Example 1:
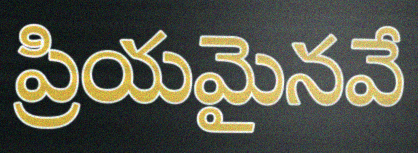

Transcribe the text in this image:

ప్రియమైనవే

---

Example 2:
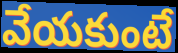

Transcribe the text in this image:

వేయకుంటే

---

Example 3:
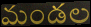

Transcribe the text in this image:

మండల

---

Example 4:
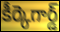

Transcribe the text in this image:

కీర్కెగార్డ్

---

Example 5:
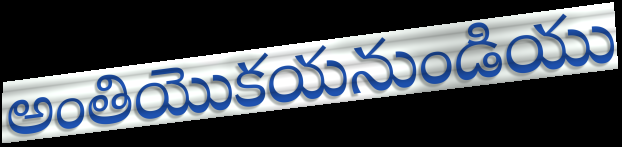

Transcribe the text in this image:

అంతియొకయనుండియు